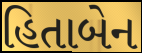
હિતાબેન